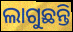
ଲାଗୁଛନ୍ତି